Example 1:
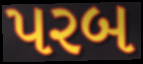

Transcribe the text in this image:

પરબ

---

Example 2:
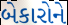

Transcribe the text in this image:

બેકારોને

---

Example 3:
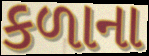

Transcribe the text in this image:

કળાના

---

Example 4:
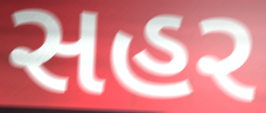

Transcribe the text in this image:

સહર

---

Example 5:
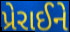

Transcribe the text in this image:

પ્રેરાઈને